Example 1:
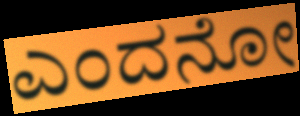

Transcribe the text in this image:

ಎಂದನೋ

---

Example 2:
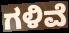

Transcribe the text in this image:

ಗಳಿವೆ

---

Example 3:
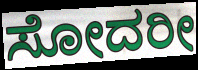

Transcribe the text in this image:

ಸೋದರೀ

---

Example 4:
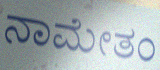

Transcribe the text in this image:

ನಾಮೇತಂ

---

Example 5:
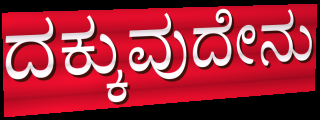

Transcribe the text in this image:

ದಕ್ಕುವುದೇನು